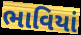
ભાવિયાં